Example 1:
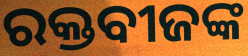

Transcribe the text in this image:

ରକ୍ତବୀଜଙ୍କ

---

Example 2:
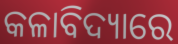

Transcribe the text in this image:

କଳାବିଦ୍ୟାରେ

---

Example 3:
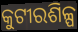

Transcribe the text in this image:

କୁଟୀରଶିଳ୍ପ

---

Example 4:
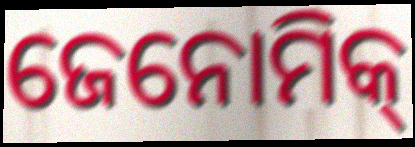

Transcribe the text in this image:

ଜେନୋମିକ୍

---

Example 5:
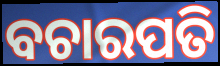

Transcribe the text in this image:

ବଚାରପତି